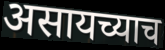
असायच्याच